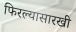
फिरल्यासारखी